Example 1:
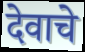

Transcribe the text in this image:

देवाचे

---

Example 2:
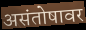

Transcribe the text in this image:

असंतोषावर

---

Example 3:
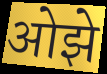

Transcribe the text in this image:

ओझे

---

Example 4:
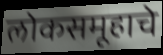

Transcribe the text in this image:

लोकसमूहाचे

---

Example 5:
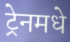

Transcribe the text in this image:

ट्रेनमधे